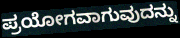
ಪ್ರಯೋಗವಾಗುವುದನ್ನು